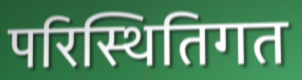
परिस्थितिगत